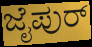
ಜೈಪುರ್